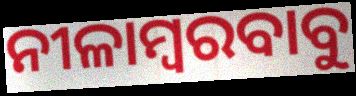
ନୀଳାମ୍ବରବାବୁ